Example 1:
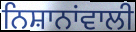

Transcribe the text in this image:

ਨਿਸ਼ਾਨਾਂਵਾਲੀ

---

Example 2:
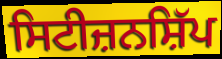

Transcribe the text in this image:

ਸਿਟੀਜ਼ਨਸ਼ਿੱਪ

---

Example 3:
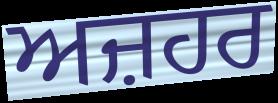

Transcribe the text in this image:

ਅਜ਼ਹਰ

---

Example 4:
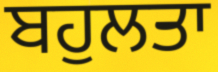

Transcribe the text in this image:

ਬਹੁਲਤਾ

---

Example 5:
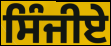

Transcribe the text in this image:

ਸਿੰਜੀਏ